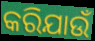
କରିଯାଉଁ